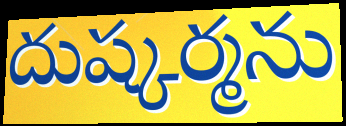
దుష్కర్మను